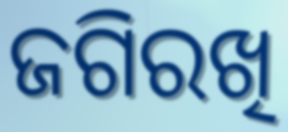
ଜଗିରଖି